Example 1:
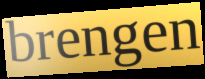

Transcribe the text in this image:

brengen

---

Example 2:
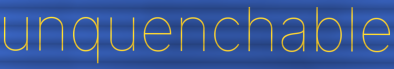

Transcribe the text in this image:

unquenchable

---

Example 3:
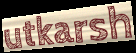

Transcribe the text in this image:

utkarsh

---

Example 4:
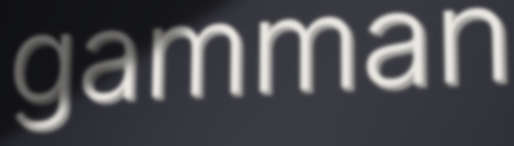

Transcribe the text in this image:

gamman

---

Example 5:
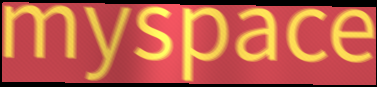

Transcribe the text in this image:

myspace